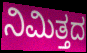
ನಿಮಿತ್ತದ